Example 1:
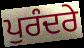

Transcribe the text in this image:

ਪੁਰੰਦਰੇ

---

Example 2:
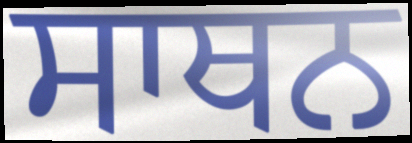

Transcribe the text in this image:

ਸਾਥਨ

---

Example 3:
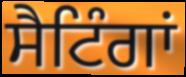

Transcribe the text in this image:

ਸੈਟਿੰਗਾਂ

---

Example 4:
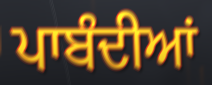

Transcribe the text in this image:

ਪਾਬੰਦੀਆਂ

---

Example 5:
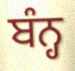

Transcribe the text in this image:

ਬੰਨ੍ਹ